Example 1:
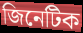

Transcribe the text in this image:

জিনেটিক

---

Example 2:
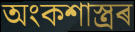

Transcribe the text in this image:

অংকশাস্ত্ৰৰ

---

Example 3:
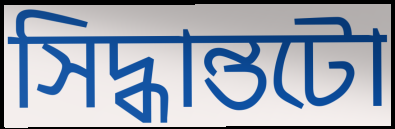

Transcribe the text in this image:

সিদ্ধান্তটো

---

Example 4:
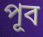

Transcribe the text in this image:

পূব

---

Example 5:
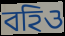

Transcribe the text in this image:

বহিও